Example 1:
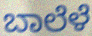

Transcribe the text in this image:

ಬಾಲೆಳೆ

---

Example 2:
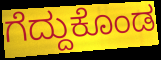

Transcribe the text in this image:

ಗೆದ್ದುಕೊಂಡ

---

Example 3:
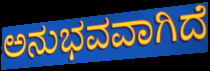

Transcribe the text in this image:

ಅನುಭವವಾಗಿದೆ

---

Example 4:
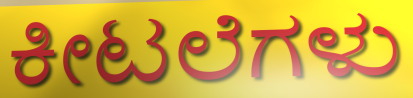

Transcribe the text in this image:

ಕೀಟಲೆಗಳು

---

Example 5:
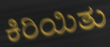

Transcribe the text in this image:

ಕಿರಿಯಿತು